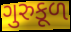
ગુરુકૂળ